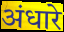
अंधारे